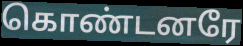
கொண்டனரே